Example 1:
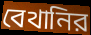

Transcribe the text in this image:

বেথানির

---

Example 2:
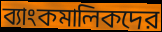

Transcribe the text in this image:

ব্যাংকমালিকদের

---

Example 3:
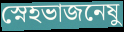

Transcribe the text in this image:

স্নেহভাজনেষু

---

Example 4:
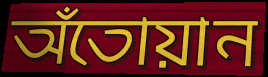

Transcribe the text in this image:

অঁতোয়ান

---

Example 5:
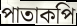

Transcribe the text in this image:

পাতাকপি